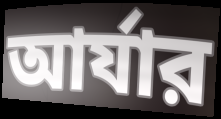
আর্যার